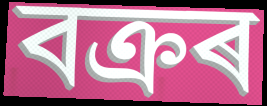
বক্ৰৰ